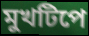
মুখটিপে